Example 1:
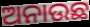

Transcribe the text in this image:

ଅନାଉଛ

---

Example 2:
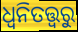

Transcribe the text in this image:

ଧ୍ୱନିତତ୍ତ୍ୱରୁ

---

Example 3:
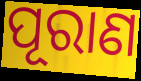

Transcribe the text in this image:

ପୂରାଣ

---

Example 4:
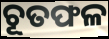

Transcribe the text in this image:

ଚୂତଫଳ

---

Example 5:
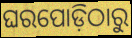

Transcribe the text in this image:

ଘରପୋଡ଼ିଠାରୁ